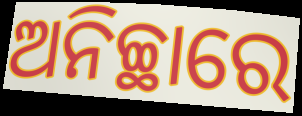
ଅନିଚ୍ଛାରେ